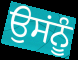
ਉਸਂਨੂੰ